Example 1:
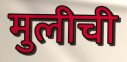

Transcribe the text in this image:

मुलीची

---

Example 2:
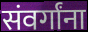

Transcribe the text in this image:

संवर्गांना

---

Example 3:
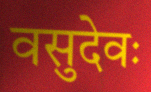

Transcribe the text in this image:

वसुदेवः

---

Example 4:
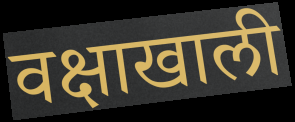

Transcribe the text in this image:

वक्षाखाली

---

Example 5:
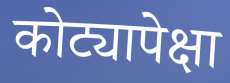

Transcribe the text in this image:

कोट्यापेक्षा